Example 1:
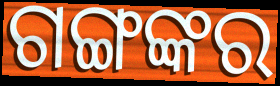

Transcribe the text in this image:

ଗଙ୍ଗଙ୍କର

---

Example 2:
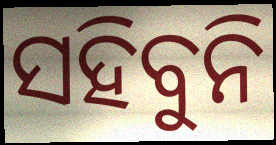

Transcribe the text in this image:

ସହିବୁନି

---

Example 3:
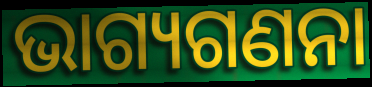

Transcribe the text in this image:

ଭାଗ୍ୟଗଣନା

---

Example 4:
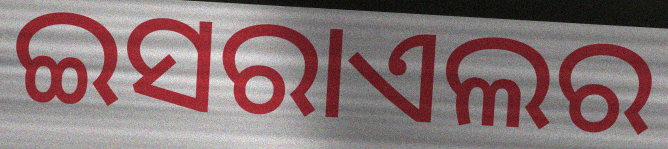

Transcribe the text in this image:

ଇସରାଏଲର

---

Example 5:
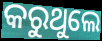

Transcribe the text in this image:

କରୁଥୁଲେ